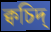
ক্বচিদ্